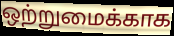
ஒற்றுமைக்காக